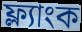
ফ্ল্যাংক